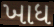
ખાધ